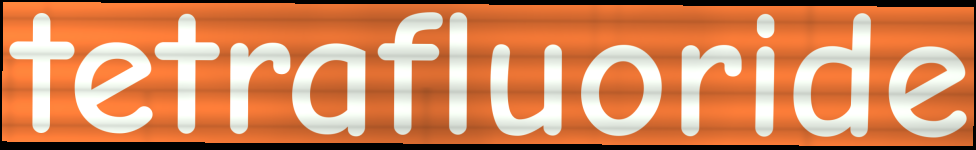
tetrafluoride